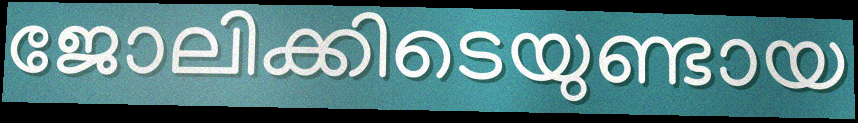
ജോലിക്കിടെയുണ്ടായ